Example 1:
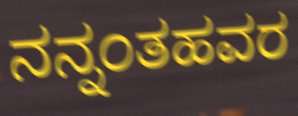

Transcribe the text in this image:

ನನ್ನಂತಹವರ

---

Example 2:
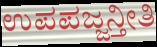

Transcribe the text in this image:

ಉಪಪಜ್ಜನ್ತೀತಿ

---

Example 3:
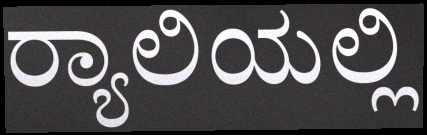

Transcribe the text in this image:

ರ‍್ಯಾಲಿಯಲ್ಲಿ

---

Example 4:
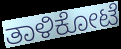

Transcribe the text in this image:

ತಾಳಿಕೋಟೆ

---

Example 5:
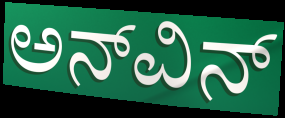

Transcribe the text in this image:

ಅನ್‌ವಿನ್